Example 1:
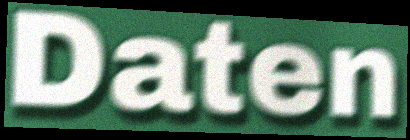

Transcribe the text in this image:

Daten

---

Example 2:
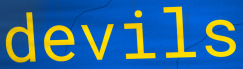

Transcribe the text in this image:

devils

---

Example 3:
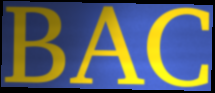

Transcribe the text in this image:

BAC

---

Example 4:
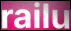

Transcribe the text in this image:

railu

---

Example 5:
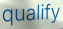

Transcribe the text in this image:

qualify